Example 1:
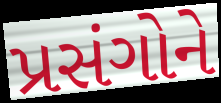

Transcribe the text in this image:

પ્રસંગોને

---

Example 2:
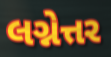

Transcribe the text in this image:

લગ્નેત્તર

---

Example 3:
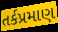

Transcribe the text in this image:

તર્કપ્રમાણ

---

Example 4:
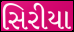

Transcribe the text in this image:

સિરીયા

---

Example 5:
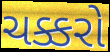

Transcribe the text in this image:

ચક્કરો